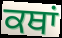
ਕਥਾਂ